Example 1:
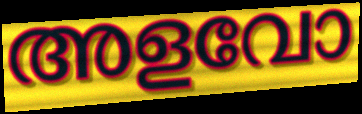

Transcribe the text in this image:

അളവോ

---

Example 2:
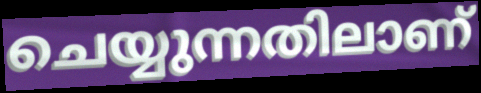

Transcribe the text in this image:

ചെയ്യുന്നതിലാണ്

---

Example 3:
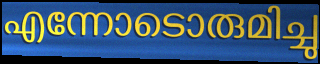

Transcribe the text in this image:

എന്നോടൊരുമിച്ചു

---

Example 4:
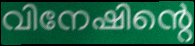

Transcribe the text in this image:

വിനേഷിന്റെ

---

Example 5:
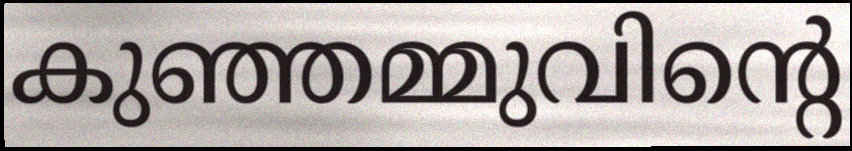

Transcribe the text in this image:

കുഞ്ഞമ്മുവിന്റെ